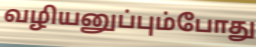
வழியனுப்பும்போது